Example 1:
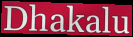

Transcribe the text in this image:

Dhakalu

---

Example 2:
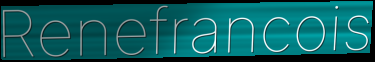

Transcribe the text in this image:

Renefrancois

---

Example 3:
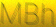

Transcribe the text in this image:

MBh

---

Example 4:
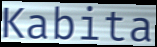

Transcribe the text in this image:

Kabita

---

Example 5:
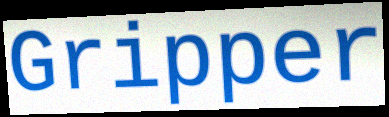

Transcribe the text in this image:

Gripper